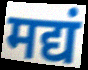
मद्यं